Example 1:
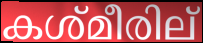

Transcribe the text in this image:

കശ്മീരില്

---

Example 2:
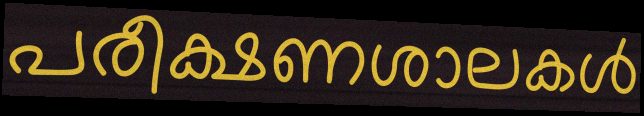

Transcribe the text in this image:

പരീക്ഷണശാലകൾ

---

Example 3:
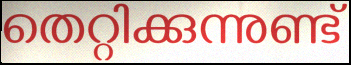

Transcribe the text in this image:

തെറ്റിക്കുന്നുണ്ട്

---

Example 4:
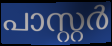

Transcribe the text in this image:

പാസ്റ്റർ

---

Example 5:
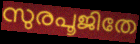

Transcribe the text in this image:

സുരപൂജിതേ